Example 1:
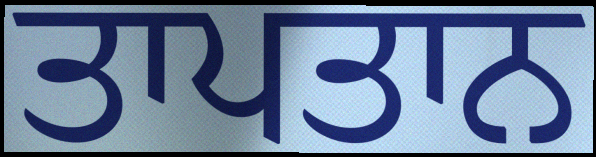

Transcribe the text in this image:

ਤਾਪਤਾਨ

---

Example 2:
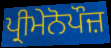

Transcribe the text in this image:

ਪ੍ਰੀਮੇਨੋਪੌਜ਼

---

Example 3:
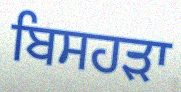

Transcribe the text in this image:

ਬਿਸਹੜਾ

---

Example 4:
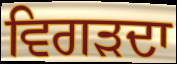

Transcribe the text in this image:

ਵਿਗੜਦਾ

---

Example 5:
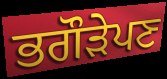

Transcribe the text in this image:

ਭਗੌੜੇਪਣ